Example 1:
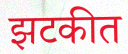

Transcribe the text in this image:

झटकीत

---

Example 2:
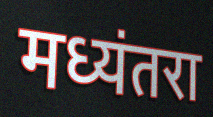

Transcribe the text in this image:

मध्यंतरा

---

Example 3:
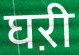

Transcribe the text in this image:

घऱी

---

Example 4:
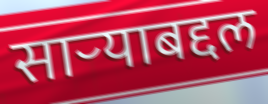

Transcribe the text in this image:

साऱ्याबद्दल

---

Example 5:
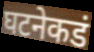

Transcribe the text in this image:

घटनेकडं